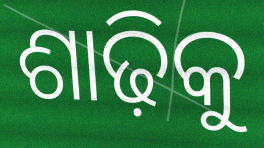
ଶାଢ଼ିକୁ